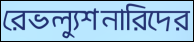
রেভল্যুশনারিদের